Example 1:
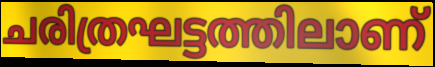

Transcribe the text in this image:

ചരിത്രഘട്ടത്തിലാണ്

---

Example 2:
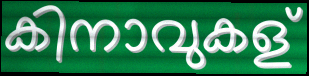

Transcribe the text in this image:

കിനാവുകള്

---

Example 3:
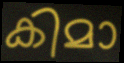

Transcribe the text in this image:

കിമാ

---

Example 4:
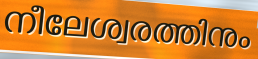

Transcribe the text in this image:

നീലേശ്വരത്തിനും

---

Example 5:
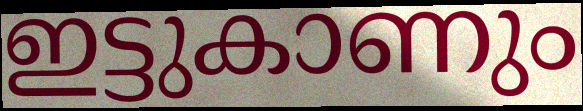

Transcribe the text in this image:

ഇട്ടുകാണും